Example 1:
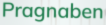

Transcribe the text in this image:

Pragnaben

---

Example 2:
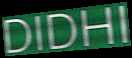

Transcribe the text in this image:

DIDHI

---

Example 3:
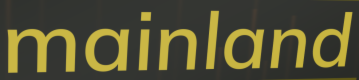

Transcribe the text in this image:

mainland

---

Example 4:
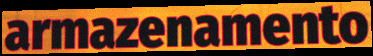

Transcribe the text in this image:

armazenamento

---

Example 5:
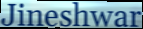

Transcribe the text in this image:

Jineshwar